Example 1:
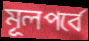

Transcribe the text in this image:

মূলপর্বে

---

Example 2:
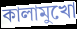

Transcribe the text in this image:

কালামুখো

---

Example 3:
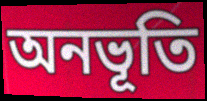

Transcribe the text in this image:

অনভূতি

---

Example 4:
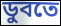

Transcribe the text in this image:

ডুবতে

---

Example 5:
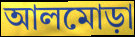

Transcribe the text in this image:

আলমোড়া